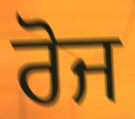
ਰੋਜ